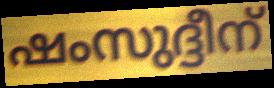
ഷംസുദ്ദീന്